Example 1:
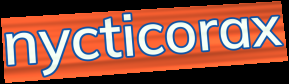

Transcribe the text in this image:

nycticorax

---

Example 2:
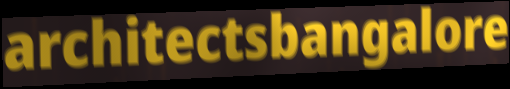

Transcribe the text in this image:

architectsbangalore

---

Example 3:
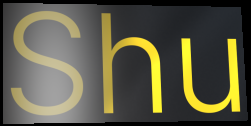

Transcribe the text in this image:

Shu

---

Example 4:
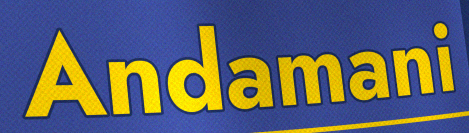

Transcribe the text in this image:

Andamani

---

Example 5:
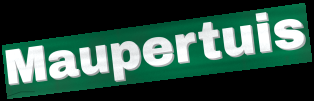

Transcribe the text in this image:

Maupertuis